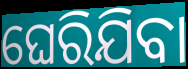
ଘେରିଯିବା